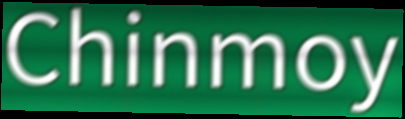
Chinmoy